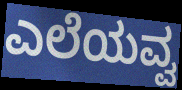
ಎಲೆಯವ್ವ